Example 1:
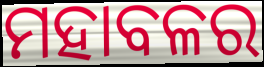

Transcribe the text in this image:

ମହାବଳର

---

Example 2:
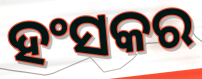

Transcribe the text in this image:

ହଂସକର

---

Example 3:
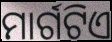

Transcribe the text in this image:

ମାର୍ଗଟିଏ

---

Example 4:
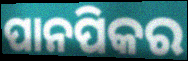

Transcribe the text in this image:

ପାନପିକର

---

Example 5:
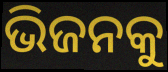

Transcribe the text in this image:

ଭିଜନକୁ